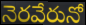
నెరవేరునో